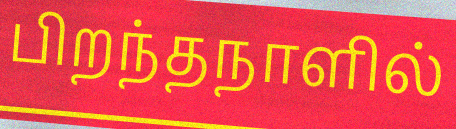
பிறந்தநாளில்